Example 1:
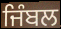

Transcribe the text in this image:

ਜਿੰਬਲ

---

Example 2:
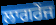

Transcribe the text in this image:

ਲਾਗਰੇਂਜ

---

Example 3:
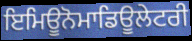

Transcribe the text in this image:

ਇਮਿਊਨੋਮਾਡਿਊਲੇਟਰੀ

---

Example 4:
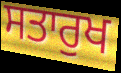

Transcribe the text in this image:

ਸਤਾਰੁਖ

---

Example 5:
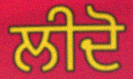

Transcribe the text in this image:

ਲੀਦੋ